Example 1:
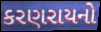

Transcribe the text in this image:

કરણરાયનો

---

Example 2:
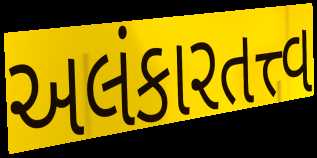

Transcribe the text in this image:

અલંકારતત્ત્વ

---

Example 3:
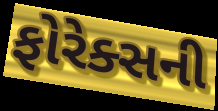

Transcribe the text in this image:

ફોરેક્સની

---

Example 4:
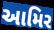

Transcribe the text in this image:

આમિર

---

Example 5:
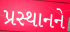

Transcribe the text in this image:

પ્રસ્થાનને